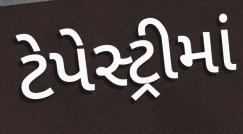
ટેપેસ્ટ્રીમાં